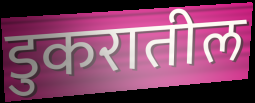
डुकरातील